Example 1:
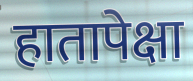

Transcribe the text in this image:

हातापेक्षा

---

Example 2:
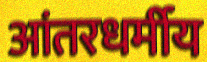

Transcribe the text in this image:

आंतरधर्मीय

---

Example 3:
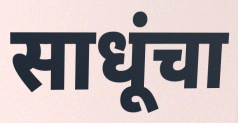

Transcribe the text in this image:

साधूंचा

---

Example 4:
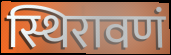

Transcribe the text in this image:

स्थिरावणं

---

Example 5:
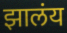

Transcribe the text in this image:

झालंय